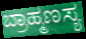
ಬ್ರಾಹ್ಮಣಸ್ಯ